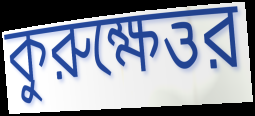
কুরুক্ষেত্তর